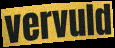
vervuld